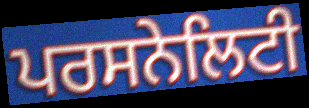
ਪਰਸਨੇਲਿਟੀ